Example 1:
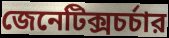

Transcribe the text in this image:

জেনেটিক্সচর্চার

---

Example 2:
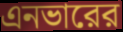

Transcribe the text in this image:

এনভারের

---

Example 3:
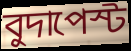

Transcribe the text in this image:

বুদাপেস্ট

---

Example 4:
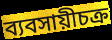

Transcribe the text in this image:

ব্যবসায়ীচক্র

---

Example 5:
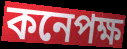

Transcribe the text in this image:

কনেপক্ষ